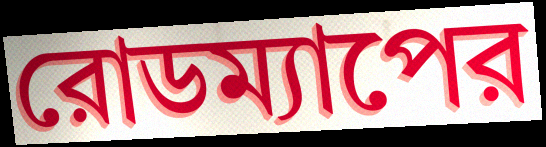
রোডম্যাপের